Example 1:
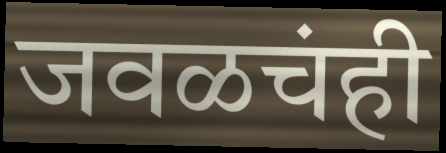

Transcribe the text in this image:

जवळचंही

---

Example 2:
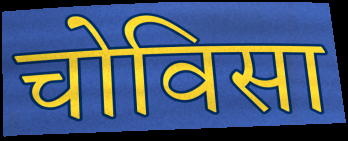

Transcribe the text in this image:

चोविसा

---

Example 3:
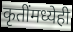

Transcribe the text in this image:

कृतींमध्येही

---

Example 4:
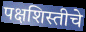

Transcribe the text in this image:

पक्षशिस्तीचे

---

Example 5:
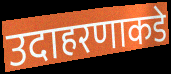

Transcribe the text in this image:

उदाहरणाकडे